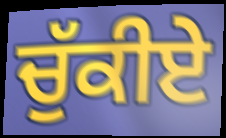
ਚੁੱਕੀਏ